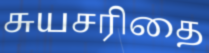
சுயசரிதை